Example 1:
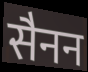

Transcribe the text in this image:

सैनन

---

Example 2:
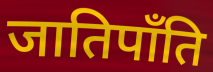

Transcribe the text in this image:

जातिपाँति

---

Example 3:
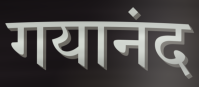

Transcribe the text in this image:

गयानंद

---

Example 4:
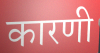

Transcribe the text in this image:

कारणी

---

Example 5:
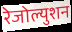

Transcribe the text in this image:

रेजोल्युशन